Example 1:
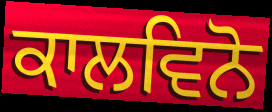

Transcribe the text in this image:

ਕਾਲਵਿਨੋ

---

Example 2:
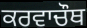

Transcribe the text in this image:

ਕਰਵਾਚੌਥ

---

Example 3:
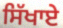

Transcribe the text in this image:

ਸਿੱਖਾਏ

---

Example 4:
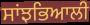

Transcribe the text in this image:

ਸਾਂਝਭਿਆਲੀ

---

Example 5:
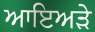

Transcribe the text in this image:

ਆਇਅੜੇ